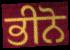
ਭੀਨੋ